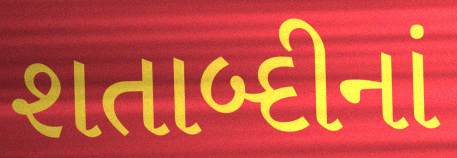
શતાબ્દીનાં